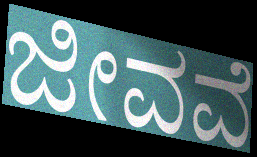
ಜೀವವೆ